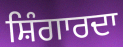
ਸ਼ਿੰਗਾਰਦਾ